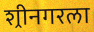
श्रीनगरला